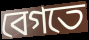
বেগতে